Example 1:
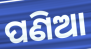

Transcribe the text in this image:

ପଣିଆ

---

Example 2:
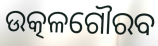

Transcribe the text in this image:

ଉତ୍କଳଗୌରବ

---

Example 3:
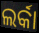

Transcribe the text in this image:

ଲର୍କା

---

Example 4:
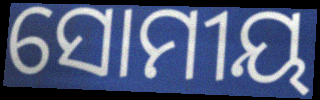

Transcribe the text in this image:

ସୋମୀୟ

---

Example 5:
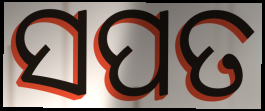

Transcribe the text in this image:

ସପତ